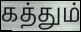
கத்தும்